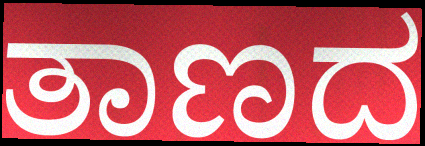
ತಾಣದ